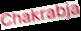
Chakrabja